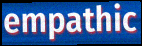
empathic